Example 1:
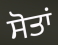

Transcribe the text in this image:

ਸੋਤਾਂ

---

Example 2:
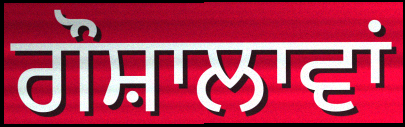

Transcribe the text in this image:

ਗੌਸ਼ਾਲਾਵਾਂ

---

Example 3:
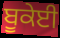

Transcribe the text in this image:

ਬੂਕੇਈ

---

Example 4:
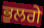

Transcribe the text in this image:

ਭੁਲਗੇ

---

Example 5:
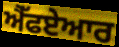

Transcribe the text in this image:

ਐੱਫਏਆਰ